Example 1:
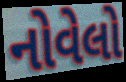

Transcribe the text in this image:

નોવેલો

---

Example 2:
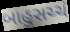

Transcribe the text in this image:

બાહુસચ્ચં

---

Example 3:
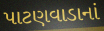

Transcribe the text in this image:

પાટણવાડાનાં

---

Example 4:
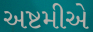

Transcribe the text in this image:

અષ્ટમીએ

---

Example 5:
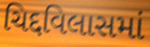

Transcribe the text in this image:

ચિદ્દવિલાસમાં